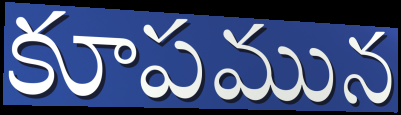
కూపమున